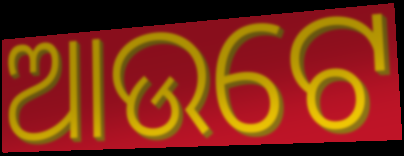
ଆଉଟେ